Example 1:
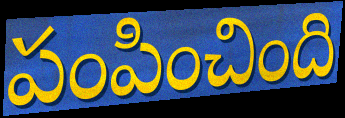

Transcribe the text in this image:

పంపించింది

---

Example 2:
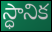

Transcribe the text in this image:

స్ధానిక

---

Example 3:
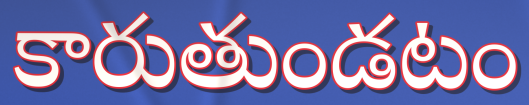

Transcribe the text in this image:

కారుతుండటం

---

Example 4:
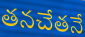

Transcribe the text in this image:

తనచేతనే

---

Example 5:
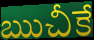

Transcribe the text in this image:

ఋచీకే